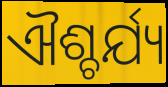
ଐଶ୍ଚର୍ଯ୍ୟ